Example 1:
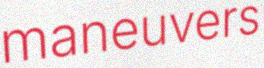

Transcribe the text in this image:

maneuvers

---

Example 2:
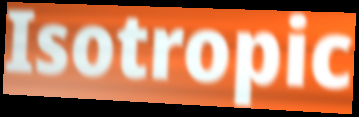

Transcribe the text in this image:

Isotropic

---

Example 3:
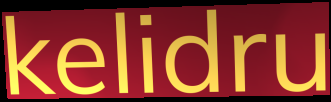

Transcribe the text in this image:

kelidru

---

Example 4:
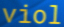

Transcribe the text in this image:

viol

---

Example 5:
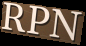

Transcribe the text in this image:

RPN